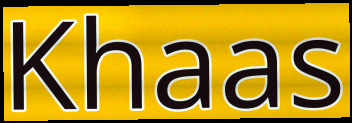
Khaas